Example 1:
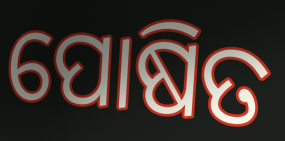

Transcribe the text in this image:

ପୋଷିତ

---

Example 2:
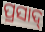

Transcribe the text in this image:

ପ୍ରସାଦ୍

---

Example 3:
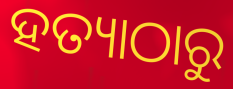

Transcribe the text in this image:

ହତ୍ୟାଠାରୁ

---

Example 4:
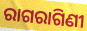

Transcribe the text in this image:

ରାଗରାଗିଣୀ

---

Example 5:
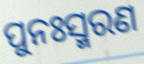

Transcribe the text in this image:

ପୁନଃସ୍ମରଣ